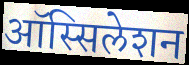
ऑस्सिलेशन